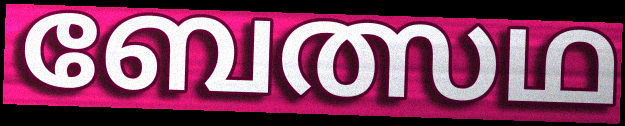
ബേത്സഥ